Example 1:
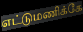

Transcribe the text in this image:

எட்டுமணிக்கே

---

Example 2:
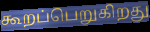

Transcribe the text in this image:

கூறப்பெறுகிறது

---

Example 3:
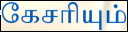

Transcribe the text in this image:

கேசரியும்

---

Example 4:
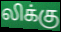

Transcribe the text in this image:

லிக்கு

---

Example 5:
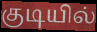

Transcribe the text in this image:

குடியில்